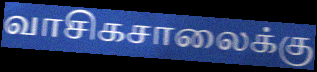
வாசிகசாலைக்கு